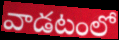
వాడటంలో